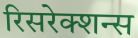
रिसरेक्शन्स